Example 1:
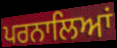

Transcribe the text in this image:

ਪਰਨਾਲਿਆਂ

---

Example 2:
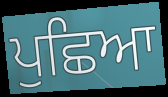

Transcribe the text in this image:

ਪੁਛਿਆ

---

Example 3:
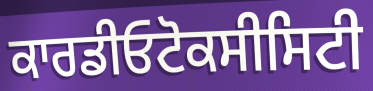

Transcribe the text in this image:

ਕਾਰਡੀਓਟੋਕਸੀਸਿਟੀ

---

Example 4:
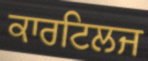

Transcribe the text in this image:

ਕਾਰਟਿਲਜ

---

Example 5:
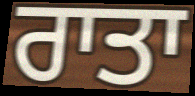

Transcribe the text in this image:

ਰਾਤਾ